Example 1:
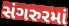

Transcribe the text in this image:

સંગરુરમાં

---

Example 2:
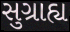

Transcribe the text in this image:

સુગ્રાહ્ય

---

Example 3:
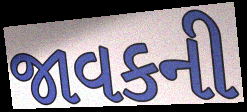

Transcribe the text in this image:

જાવકની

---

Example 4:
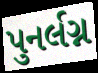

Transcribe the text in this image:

પુનર્લગ્ન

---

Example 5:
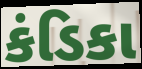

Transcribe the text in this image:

કંડિકા